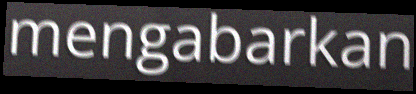
mengabarkan